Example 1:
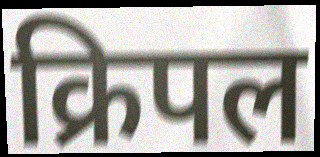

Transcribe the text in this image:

क्रिपल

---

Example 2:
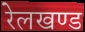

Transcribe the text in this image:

रेलखण्ड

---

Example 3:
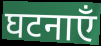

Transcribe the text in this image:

घटनाएँ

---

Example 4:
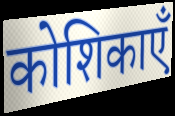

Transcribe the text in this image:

कोशिकाएँ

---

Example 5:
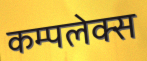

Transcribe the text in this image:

कम्पलेक्स